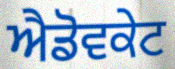
ਐਡੋਵਕੇਟ